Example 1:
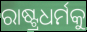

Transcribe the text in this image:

ରାଷ୍ଟ୍ରଧର୍ମକୁ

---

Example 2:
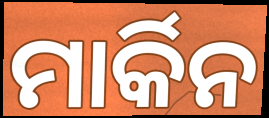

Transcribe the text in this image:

ମାର୍କିନ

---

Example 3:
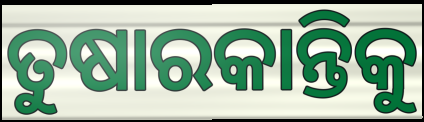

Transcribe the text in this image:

ତୁଷାରକାନ୍ତିକୁ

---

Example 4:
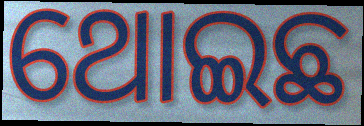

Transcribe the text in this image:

ଥୋଇଛ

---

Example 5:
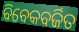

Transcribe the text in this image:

ବିବେକବର୍ଜିତ